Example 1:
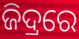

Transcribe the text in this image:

ଜିଦ୍ରରେ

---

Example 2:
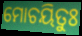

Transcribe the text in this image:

ମୋଚୟିତୁଃ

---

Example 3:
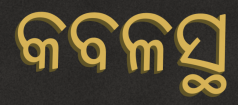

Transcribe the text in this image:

କବଳସ୍ଥ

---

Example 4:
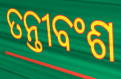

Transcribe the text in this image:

ତନ୍ତୀବଂଶ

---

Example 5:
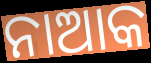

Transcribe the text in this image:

ନାଆକ